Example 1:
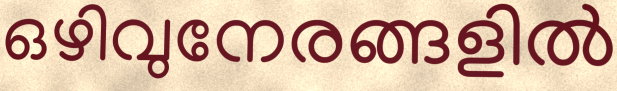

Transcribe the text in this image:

ഒഴിവുനേരങ്ങളിൽ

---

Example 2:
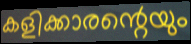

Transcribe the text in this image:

കളിക്കാരന്റെയും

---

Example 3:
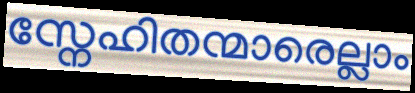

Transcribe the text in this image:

സ്നേഹിതന്മാരെല്ലാം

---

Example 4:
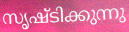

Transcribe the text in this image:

സൃഷ്ടിക്കുന്നു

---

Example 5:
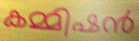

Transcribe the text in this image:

കമ്മിഷൻ